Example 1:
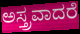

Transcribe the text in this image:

ಅಸ್ತ್ರವಾದರೆ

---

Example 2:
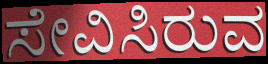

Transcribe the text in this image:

ಸೇವಿಸಿರುವ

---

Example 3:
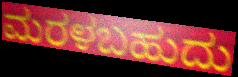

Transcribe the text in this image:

ಮರಳಬಹುದು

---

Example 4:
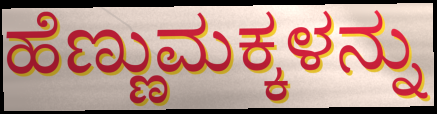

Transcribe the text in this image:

ಹೆಣ್ಣುಮಕ್ಕಳನ್ನು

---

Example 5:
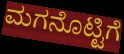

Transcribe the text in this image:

ಮಗನೊಟ್ಟಿಗೆ